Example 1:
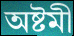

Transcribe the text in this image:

অষ্টমী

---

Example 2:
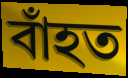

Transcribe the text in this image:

বাঁহত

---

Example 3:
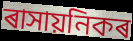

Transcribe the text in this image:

ৰাসায়নিকৰ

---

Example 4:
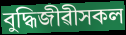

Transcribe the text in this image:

বুদ্ধিজীৱীসকল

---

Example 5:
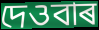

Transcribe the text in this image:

দেওবাৰ